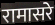
रामासरे